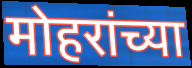
मोहरांच्या